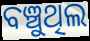
ବଞ୍ଚୁଥିଲ